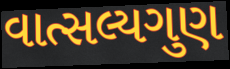
વાત્સલ્યગુણ